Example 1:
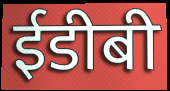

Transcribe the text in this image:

ईडीबी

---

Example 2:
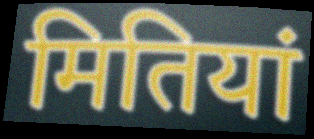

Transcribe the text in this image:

मितियां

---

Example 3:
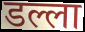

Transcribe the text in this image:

डल्ला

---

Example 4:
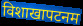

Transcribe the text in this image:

विशाखापटनम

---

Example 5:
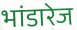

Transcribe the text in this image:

भांडारेज